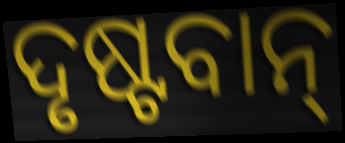
ଦୃଷ୍ଟବାନ୍